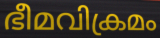
ഭീമവിക്രമം